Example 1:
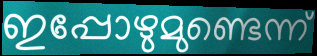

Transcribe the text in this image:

ഇപ്പോഴുമുണ്ടെന്ന്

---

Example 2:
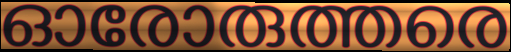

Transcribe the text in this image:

ഓരോരുത്തരെ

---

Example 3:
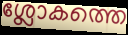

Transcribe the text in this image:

ശ്ലോകത്തെ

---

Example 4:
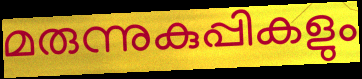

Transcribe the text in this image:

മരുന്നുകുപ്പികളും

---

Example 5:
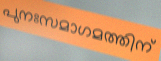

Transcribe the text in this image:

പുനഃസമാഗമത്തിന്